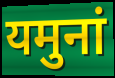
यमुनां